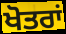
ਖੋਤਰਾਂ